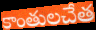
కాంతులచేత